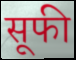
सूफी